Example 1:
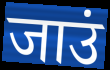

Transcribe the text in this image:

जाउं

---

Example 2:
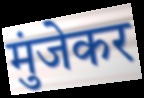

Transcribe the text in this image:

मुंजेकर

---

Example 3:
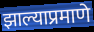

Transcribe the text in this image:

झाल्याप्रमाणे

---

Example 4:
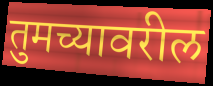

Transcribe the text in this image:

तुमच्यावरील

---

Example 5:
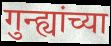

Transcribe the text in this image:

गुन्ह्यांच्या